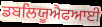
ਡਬਲਿਯੂਐਫਆਈ